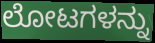
ಲೋಟಗಳನ್ನು